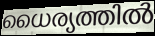
ധൈര്യത്തിൽ